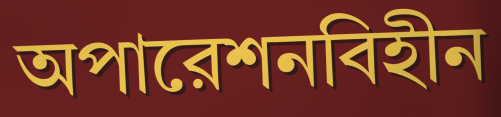
অপারেশনবিহীন